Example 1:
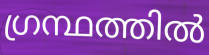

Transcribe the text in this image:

ഗ്രന്ഥത്തിൽ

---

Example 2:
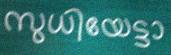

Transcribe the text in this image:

സുധിയേട്ടാ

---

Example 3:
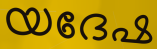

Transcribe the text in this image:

യദേഷ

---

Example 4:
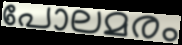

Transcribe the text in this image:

പോലമരം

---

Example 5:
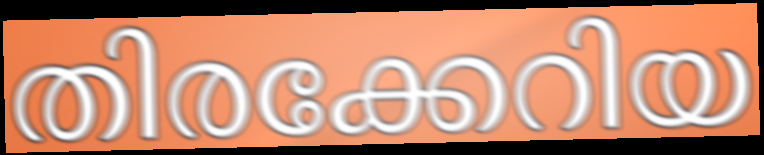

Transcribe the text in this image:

തിരക്കേറിയ